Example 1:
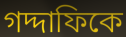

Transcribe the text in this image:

গদ্দাফিকে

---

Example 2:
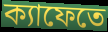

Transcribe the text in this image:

ক্যাফেতে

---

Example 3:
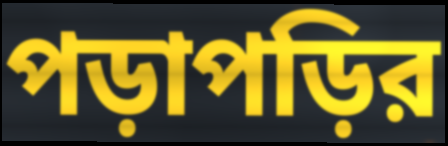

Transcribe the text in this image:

পড়াপড়ির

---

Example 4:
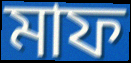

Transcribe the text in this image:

মাফ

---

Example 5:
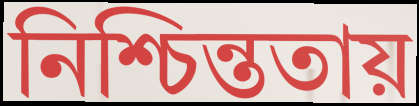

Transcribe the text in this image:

নিশ্চিন্ততায়